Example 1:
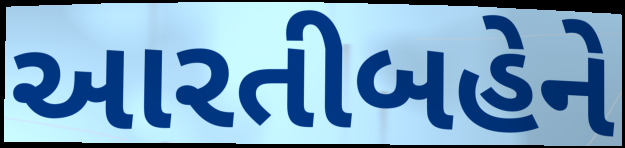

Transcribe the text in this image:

આરતીબહેને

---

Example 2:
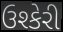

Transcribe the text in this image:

ઉશ્કેરી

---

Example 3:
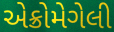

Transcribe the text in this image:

એક્રોમેગેલી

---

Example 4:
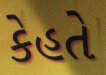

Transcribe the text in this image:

કેહતે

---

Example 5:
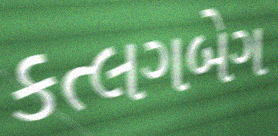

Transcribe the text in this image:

કત્લગબેગ